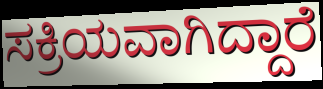
ಸಕ್ರಿಯವಾಗಿದ್ದಾರೆ